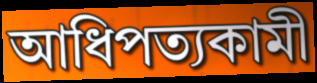
আধিপত্যকামী